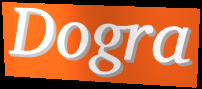
Dogra